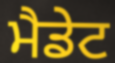
ਮੈਡੇਟ